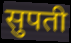
सुपती